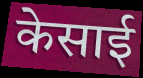
केसाई